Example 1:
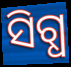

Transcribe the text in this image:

ସିଗ୍ଧ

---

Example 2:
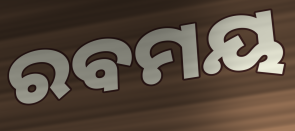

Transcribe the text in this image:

ରବମୟ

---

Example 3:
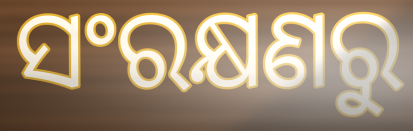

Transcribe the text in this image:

ସଂରକ୍ଷଣରୁ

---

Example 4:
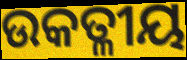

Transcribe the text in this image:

ଉକତ୍ଳୀୟ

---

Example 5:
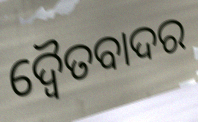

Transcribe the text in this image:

ଦ୍ୱୈତବାଦର